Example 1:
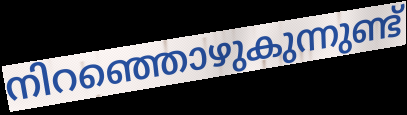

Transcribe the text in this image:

നിറഞ്ഞൊഴുകുന്നുണ്ട്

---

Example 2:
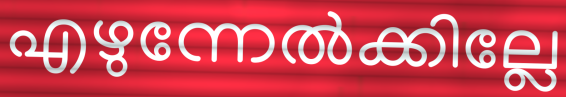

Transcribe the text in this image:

എഴുന്നേൽക്കില്ലേ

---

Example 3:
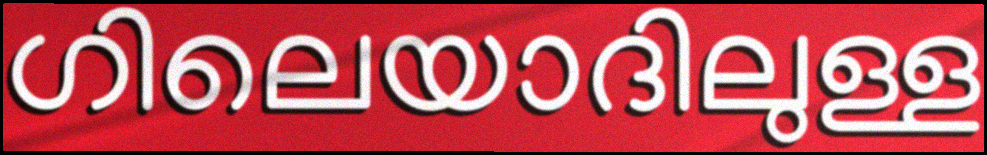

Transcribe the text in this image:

ഗിലെയാദിലുള്ള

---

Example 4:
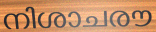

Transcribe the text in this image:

നിശാചരൗ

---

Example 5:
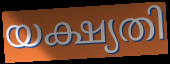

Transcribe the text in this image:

യക്ഷ്യതി